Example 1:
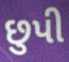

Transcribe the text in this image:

છુપી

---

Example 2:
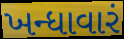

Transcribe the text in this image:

ખન્ધાવારં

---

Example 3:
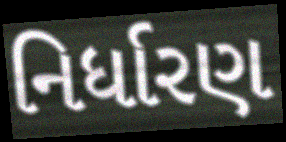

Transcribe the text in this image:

નિર્ધારણ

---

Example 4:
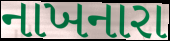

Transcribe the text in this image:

નાખનારા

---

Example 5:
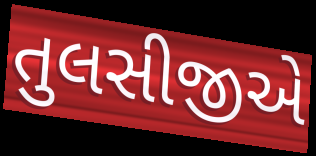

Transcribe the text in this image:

તુલસીજીએ